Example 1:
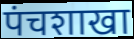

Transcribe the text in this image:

पंचशाखा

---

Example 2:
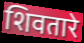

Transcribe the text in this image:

शिवतारे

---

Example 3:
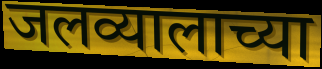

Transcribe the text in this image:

जलव्यालाच्या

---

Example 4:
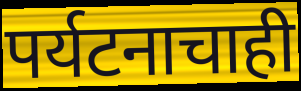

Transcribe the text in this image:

पर्यटनाचाही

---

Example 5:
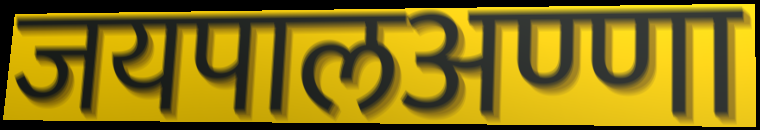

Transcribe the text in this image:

जयपालअण्णा